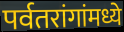
पर्वतरांगांमध्ये